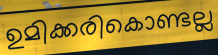
ഉമിക്കരികൊണ്ടല്ല